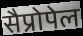
सैप्रोपेल